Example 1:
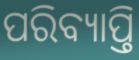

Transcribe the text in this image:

ପରିବ୍ୟାପ୍ତି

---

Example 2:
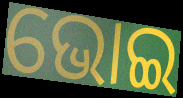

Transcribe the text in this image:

ଭୋଇ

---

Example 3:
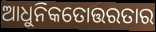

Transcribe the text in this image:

ଆଧୁନିକତୋତ୍ତରତାର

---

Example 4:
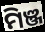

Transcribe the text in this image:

ମିଞ୍ଜ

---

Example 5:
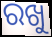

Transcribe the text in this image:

ରଖୁ